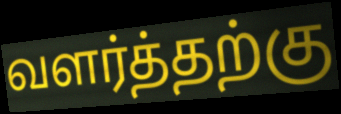
வளர்த்தற்கு